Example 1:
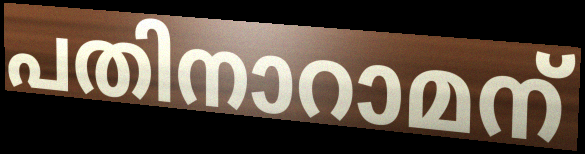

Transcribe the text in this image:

പതിനാറാമന്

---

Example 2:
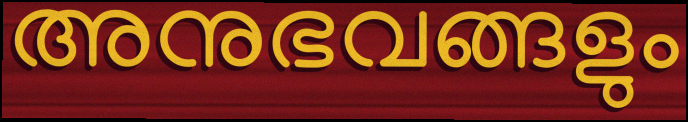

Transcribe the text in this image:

അനുഭവങ്ങളും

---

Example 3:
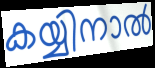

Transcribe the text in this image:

കയ്യിനാൽ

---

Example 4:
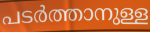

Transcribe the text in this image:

പടർത്താനുള്ള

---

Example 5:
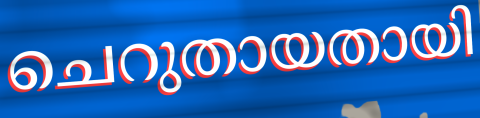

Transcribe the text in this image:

ചെറുതായതായി